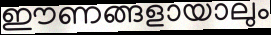
ഈണങ്ങളായാലും